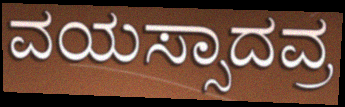
ವಯಸ್ಸಾದವ್ರ